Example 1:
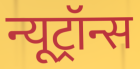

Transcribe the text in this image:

न्यूट्रॉन्स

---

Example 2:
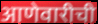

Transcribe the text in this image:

आणेवारीची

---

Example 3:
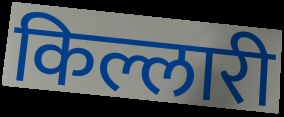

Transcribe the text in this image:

किल्लारी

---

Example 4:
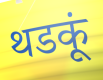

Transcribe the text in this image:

थडकूं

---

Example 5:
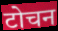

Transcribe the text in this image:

टोचन